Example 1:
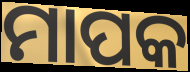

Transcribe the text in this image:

ମାପକ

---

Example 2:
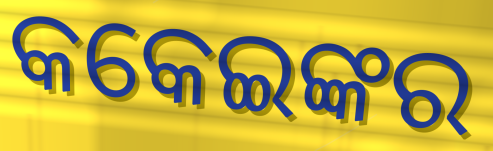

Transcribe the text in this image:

କକେଇଙ୍କର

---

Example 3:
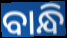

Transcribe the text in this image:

ବାନ୍ଧି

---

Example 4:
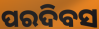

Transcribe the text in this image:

ପରଦିବସ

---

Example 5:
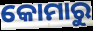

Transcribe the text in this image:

କୋମାରୁ